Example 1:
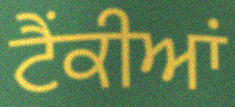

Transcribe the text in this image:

ਟੈਂਕੀਆਂ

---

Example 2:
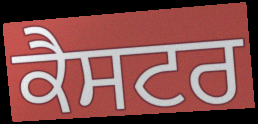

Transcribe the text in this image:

ਕੈਸਟਰ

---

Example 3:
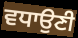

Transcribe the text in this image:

ਵਧਾਉਣੀ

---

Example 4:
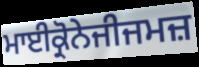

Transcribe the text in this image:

ਮਾਈਕ੍ਰੋਨੇਜੀਜਮਜ਼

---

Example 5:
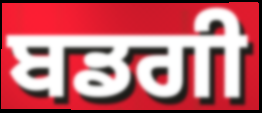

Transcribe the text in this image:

ਬਡਗੀ